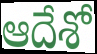
ఆదేశో